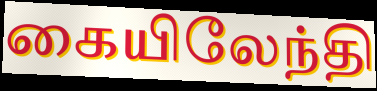
கையிலேந்தி